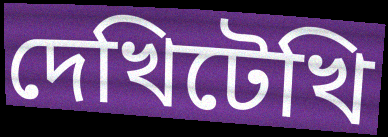
দেখিটেখি